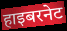
हाइबरनेट